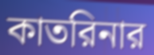
কাতরিনার